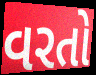
વરતો